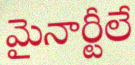
మైనార్టీలే